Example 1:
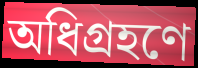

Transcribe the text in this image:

অধিগ্রহণে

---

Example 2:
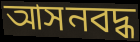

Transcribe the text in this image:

আসনবদ্ধ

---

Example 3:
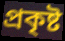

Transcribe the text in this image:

প্রকৃষ্ট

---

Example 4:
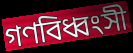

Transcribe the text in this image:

গণবিধ্বংসী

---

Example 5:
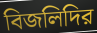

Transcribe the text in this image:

বিজলিদির